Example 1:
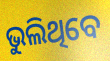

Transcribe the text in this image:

ଭୁଲିଥିବେ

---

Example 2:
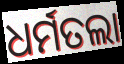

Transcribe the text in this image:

ଧର୍ମତଲା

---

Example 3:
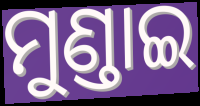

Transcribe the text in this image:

ମୁଣ୍ଡାଇ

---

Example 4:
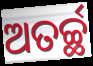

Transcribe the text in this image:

ଅତର୍ଚ୍ଛ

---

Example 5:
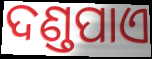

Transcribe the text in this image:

ଦଣ୍ଡପାଏ